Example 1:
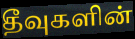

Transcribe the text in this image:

தீவுகளின்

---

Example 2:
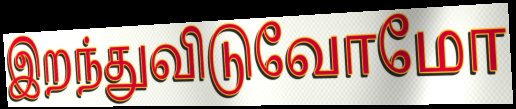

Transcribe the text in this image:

இறந்துவிடுவோமோ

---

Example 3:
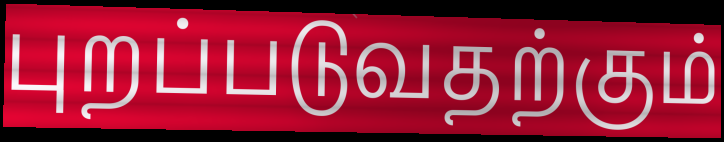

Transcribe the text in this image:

புறப்படுவதற்கும்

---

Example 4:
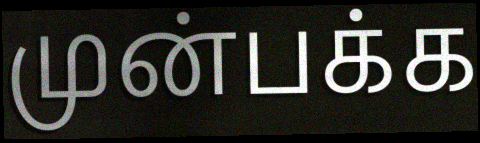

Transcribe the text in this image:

முன்பக்க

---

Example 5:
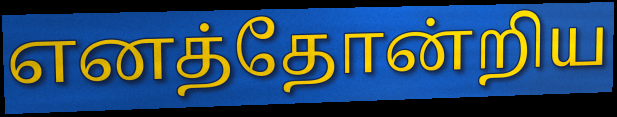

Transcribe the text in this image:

எனத்தோன்றிய